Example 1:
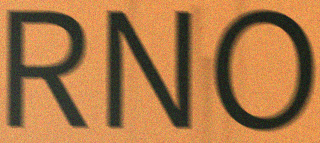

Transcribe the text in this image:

RNO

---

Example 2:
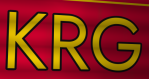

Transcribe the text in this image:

KRG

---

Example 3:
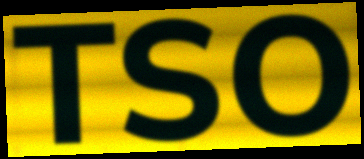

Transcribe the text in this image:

TSO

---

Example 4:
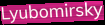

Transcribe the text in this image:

Lyubomirsky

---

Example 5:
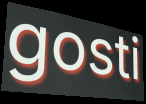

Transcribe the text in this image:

gosti